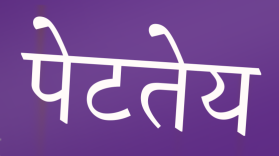
पेटतेय